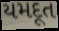
યમદૂત